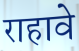
राहावे